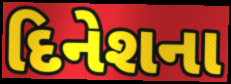
દિનેશના